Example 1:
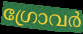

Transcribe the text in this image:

ഗ്രോവർ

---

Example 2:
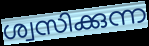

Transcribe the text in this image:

ശ്വസിക്കുന്ന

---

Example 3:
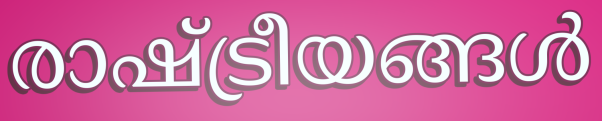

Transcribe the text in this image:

രാഷ്ട്രീയങ്ങൾ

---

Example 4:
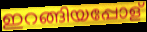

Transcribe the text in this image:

ഇറങ്ങിയപ്പോള്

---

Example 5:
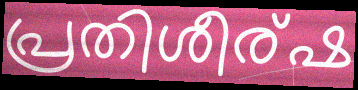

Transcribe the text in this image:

പ്രതിശീര്ഷ